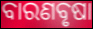
ବାରଣବୃଷା